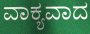
ವಾಕ್ಯವಾದ